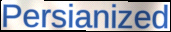
Persianized